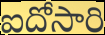
ఐదోసారి